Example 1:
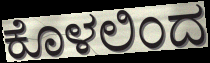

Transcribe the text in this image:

ಕೊಳಲಿಂದ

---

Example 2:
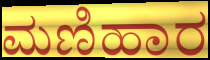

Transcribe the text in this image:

ಮಣಿಹಾರ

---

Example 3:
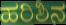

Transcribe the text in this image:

ಹರಿಶಿನ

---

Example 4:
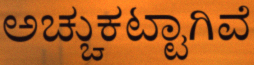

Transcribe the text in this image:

ಅಚ್ಚುಕಟ್ಟಾಗಿವೆ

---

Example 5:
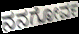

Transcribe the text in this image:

ನನಗೋರ್ವ